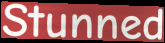
Stunned